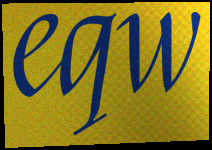
eqw